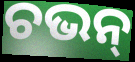
ଚଭନ୍